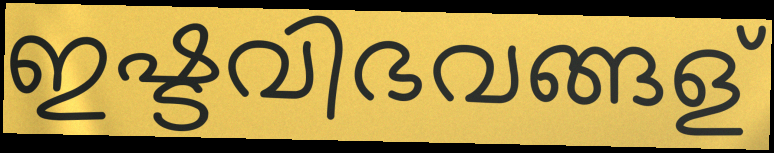
ഇഷ്ടവിഭവങ്ങള്